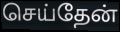
செய்தேன்